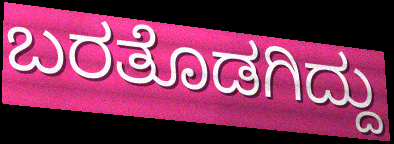
ಬರತೊಡಗಿದ್ದು